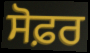
ਸੋਫ਼ਰ